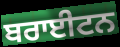
ਬਰਾਈਟਨ